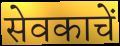
सेवकाचें